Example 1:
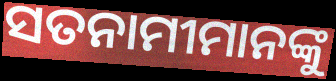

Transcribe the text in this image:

ସତନାମୀମାନଙ୍କୁ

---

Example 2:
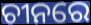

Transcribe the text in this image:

ଚୀନରେ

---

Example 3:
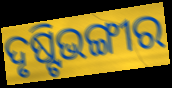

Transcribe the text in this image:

ଦୃଷ୍ଟିଭଙ୍ଗୀର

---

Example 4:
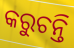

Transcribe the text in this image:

କରୁଚନ୍ତି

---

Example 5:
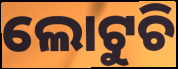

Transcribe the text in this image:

ଲୋଟୁଚି